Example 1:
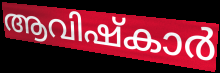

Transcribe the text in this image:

ആവിഷ്കാർ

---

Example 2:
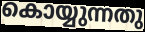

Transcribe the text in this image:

കൊയ്യുന്നതു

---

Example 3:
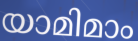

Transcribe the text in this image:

യാമിമാം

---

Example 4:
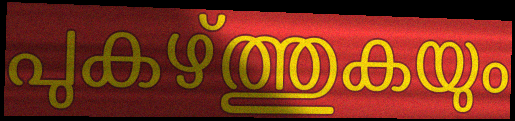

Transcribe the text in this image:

പുകഴ്ത്തുകയും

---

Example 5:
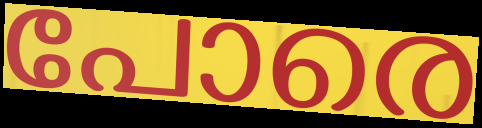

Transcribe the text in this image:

പോരെ